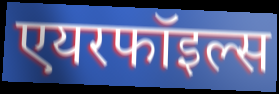
एयरफॉइल्स